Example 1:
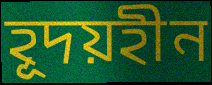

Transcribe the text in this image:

হূদয়হীন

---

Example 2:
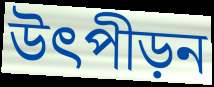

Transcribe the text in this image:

উৎপীড়ন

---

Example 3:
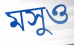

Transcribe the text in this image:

মসুও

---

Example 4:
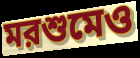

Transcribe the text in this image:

মরশুমেও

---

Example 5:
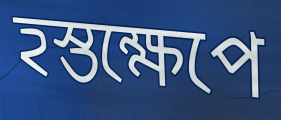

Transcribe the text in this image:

হস্তক্ষেপে